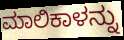
ಮಾಲಿಕಾಳನ್ನು